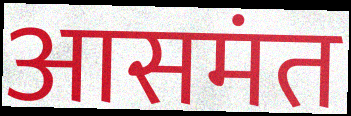
आसमंत